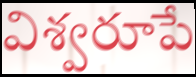
విశ్వరూపే